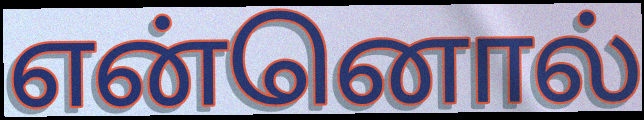
என்னொல்